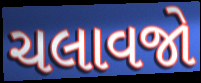
ચલાવજો